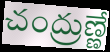
చంద్రుణ్ణే